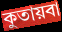
কুতায়বা